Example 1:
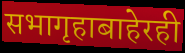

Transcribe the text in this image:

सभागृहाबाहेरही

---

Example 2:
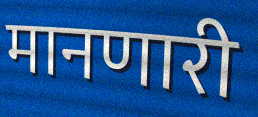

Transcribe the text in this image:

मानणारी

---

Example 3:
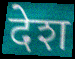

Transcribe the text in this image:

देश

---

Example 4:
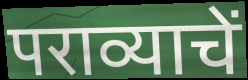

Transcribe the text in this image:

पराव्याचें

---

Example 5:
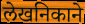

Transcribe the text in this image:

लेखनिकाने